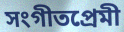
সংগীতপ্রেমী